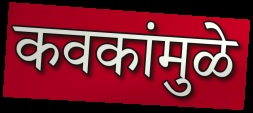
कवकांमुळे